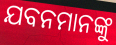
ଯବନମାନଙ୍କୁ